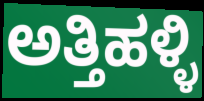
ಅತ್ತಿಹಳ್ಳಿ